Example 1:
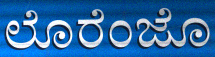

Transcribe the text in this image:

ಲೊರೆಂಜೊ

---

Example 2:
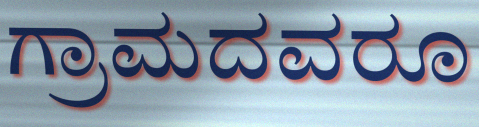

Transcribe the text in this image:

ಗ್ರಾಮದವರೂ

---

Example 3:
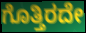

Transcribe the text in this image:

ಗೊತ್ತಿರದೇ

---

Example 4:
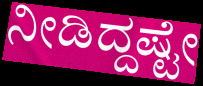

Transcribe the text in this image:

ನೀಡಿದ್ದಷ್ಟೇ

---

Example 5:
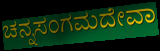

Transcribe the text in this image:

ಚನ್ನಸಂಗಮದೇವಾ